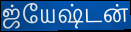
ஜ்யேஷ்டன்